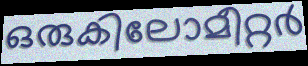
ഒരുകിലോമീറ്റർ